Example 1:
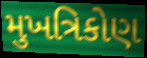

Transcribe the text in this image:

મુખત્રિકોણ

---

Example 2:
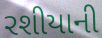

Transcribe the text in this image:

રશીયાની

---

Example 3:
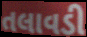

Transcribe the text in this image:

તલાવડી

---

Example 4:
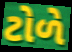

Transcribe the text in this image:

ટોળે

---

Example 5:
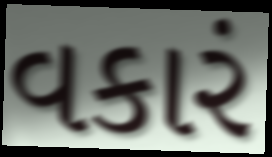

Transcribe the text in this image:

વકારં